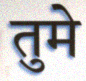
तुमे